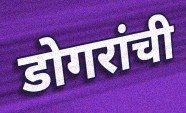
डोगरांची